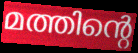
മത്തിന്റെ